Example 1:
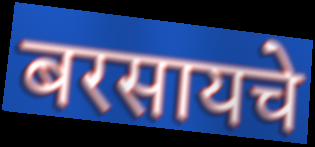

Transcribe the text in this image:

बरसायचे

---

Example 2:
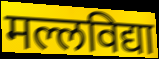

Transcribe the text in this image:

मल्लविद्या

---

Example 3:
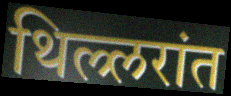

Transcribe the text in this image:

थिल्लरांत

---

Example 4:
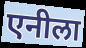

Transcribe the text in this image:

एनीला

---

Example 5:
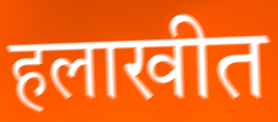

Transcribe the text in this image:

हलाखीत